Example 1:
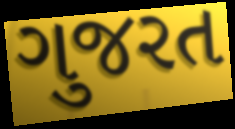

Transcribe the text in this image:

ગુજરત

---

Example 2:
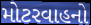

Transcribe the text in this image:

મોટરવાહનો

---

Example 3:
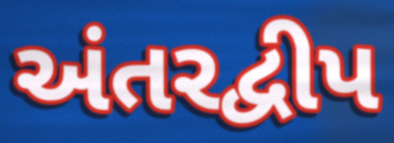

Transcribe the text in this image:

અંતરદ્વીપ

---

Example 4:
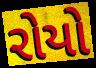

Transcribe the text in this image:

રોયો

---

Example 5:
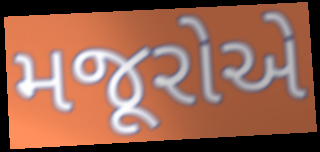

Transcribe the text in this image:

મજૂરોએ